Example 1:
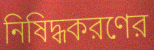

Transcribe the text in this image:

নিষিদ্ধকরণের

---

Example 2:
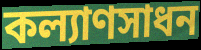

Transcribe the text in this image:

কল্যাণসাধন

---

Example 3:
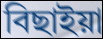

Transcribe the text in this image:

বিছাইয়া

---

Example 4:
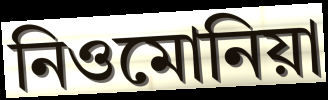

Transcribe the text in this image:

নিওমোনিয়া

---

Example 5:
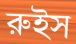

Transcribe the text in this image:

রুইস